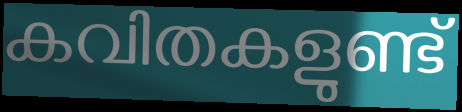
കവിതകളുണ്ട്